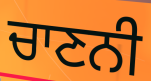
ਚਾਣਨੀ